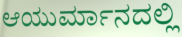
ಆಯುರ್ಮಾನದಲ್ಲಿ